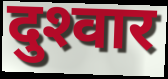
दुश्‍वार